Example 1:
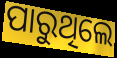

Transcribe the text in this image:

ପାରୁଥିଲେ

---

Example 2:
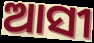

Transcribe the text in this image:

ଆସୀ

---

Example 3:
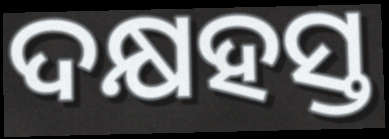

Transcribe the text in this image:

ଦକ୍ଷହସ୍ତ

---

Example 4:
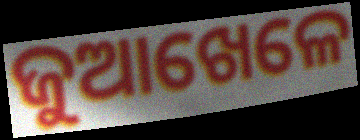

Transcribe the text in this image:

ଜୁଆଖେଳେ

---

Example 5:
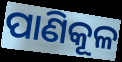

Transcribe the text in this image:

ପାଣିକୂଳ